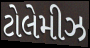
ટોલેમીઝ